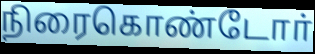
நிரைகொண்டோர்